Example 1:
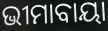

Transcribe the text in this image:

ଭୀମାବାୟା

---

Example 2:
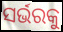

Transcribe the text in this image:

ସର୍ଭରକୁ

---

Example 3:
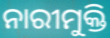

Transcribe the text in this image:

ନାରୀମୁକ୍ତି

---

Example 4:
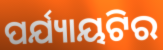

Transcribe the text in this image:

ପର୍ଯ୍ୟାୟଟିର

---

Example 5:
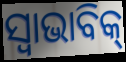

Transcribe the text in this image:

ସ୍ଵାଭାବିକ୍